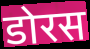
डोरस